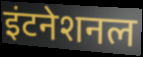
इंटनेशनल